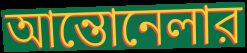
আন্তোনেলার